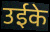
उईके